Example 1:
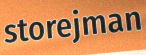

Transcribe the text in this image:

storejman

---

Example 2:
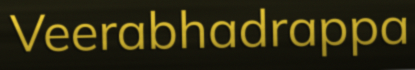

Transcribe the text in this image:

Veerabhadrappa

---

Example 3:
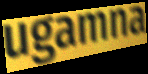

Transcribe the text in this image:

ugamna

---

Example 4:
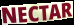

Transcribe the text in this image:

NECTAR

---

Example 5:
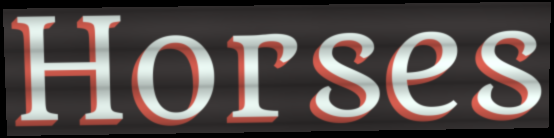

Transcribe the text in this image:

Horses